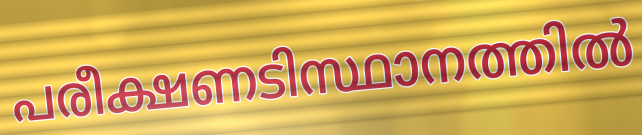
പരീക്ഷണടിസ്ഥാനത്തിൽ